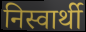
निस्वार्थी